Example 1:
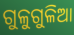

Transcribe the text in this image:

ଗୁଳୁଗୁଳିଆ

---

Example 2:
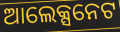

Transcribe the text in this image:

ଆଲେକ୍ସନେଟ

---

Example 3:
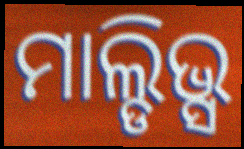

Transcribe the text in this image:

ମାଲ୍ଡିଭ୍ସ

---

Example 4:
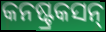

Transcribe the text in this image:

କନଷ୍ଟ୍ରକସନ୍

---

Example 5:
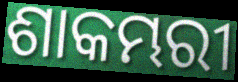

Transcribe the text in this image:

ଶାକମ୍ଭରୀ